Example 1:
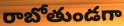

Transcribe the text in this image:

రాబోతుండగా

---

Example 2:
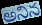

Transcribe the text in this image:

అనిన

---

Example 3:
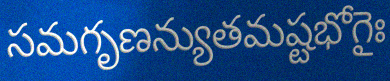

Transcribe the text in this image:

సమగృణన్యుతమష్టభోగైః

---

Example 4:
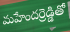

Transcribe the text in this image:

మహేందర్రెడ్డితో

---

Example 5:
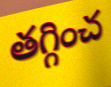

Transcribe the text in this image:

తగ్గించ